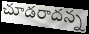
చూడరాదన్న